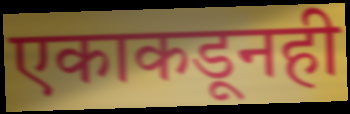
एकाकडूनही